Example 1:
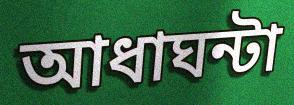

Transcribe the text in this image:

আধাঘন্টা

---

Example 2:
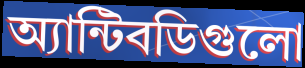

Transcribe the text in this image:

অ্যান্টিবডিগুলো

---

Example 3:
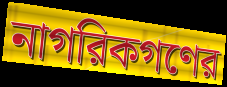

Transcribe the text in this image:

নাগরিকগণের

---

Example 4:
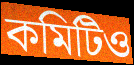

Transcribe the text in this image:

কমিটিও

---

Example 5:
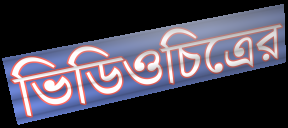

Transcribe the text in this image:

ভিডিওচিত্রের